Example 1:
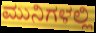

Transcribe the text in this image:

ಮುನಿಗಳಲ್ಲಿ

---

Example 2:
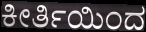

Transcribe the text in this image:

ಕೀರ್ತಿಯಿಂದ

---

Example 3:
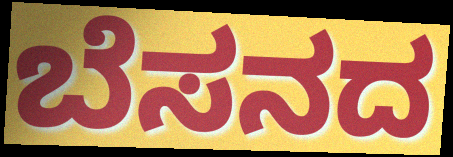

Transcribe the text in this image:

ಬೆಸನದ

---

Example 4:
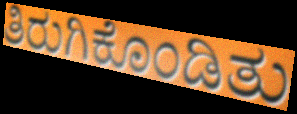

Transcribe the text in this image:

ತಿರುಗಿಕೊಂಡಿತು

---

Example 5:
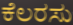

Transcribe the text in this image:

ಕೆಲರಸು